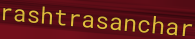
rashtrasanchar